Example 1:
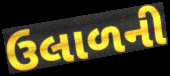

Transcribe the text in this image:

ઉલાળની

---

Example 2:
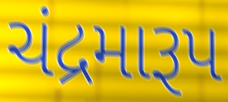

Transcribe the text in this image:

ચંદ્રમારૂપ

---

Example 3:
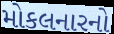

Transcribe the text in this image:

મોકલનારનો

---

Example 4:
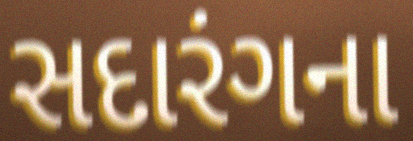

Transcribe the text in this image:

સદારંગના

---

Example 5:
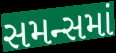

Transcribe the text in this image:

સમન્સમાં